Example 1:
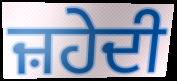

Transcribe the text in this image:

ਜ਼ਹੇਦੀ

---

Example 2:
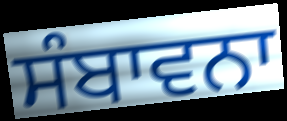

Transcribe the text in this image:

ਸੰਬਾਵਨਾ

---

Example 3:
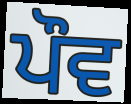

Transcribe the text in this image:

ਪੌਵ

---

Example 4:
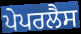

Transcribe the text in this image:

ਪੇਪਰਲੈਸ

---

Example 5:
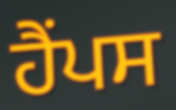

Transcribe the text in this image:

ਹੈਂਪਸ